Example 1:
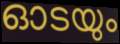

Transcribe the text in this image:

ഓടയും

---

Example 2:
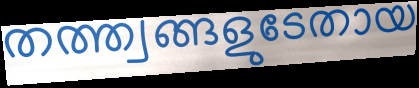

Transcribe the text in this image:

തത്ത്വങ്ങളുടേതായ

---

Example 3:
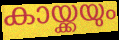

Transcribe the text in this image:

കായ്ക്കയും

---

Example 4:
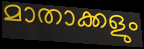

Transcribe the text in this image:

മാതാക്കളും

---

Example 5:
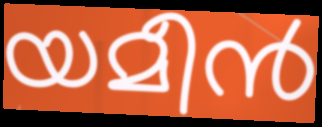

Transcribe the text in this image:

യമീൻ